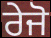
ਰੇਜੋ